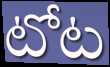
టోట